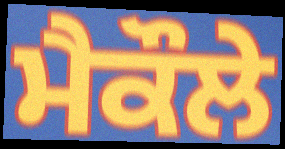
ਮੈਕੌਲੇ